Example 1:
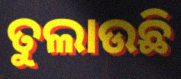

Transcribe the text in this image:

ତୁଲାଉଛି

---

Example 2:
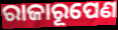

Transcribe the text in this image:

ରାଜାରୂପେଣ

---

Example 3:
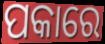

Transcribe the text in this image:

ପକାରେ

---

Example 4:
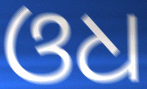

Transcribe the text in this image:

ଓଧ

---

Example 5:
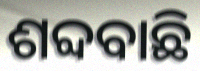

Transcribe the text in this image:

ଶବ୍ଦବାଛି